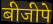
बीजीपे